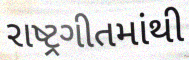
રાષ્ટ્રગીતમાંથી